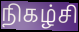
நிகழ்சி